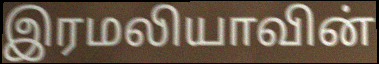
இரமலியாவின்